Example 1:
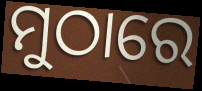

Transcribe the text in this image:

ମୁଠାରେ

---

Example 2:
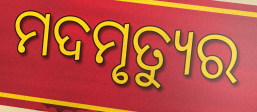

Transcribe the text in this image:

ମଦମୃତ୍ୟୁର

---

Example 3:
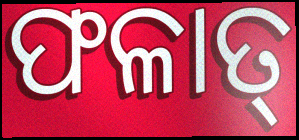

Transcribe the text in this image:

ଫଳାତ୍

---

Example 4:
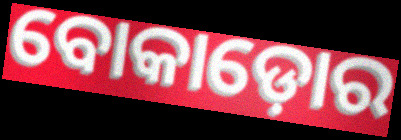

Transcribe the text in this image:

ବୋକାଡ଼ୋର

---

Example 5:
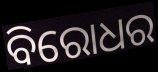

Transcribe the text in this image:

ବିରୋଧର